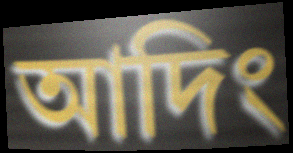
আদিং